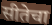
सीतेचा